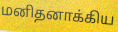
மனிதனாக்கிய